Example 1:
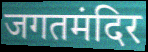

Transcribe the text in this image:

जगतमंदिर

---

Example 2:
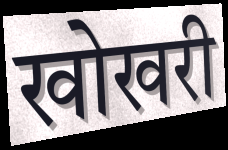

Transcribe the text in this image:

खोखरी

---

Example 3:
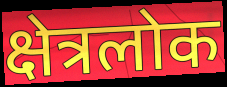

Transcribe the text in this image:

क्षेत्रलोक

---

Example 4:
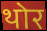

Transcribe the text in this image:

थोर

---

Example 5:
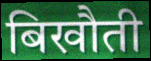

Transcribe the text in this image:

बिखौती